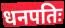
धनपतिः